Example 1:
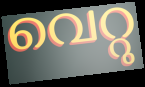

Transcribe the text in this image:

വെറ്റു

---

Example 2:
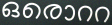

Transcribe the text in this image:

ഒരൊററ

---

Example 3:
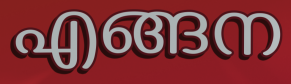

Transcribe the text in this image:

എങ്ങന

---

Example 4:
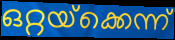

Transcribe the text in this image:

ഒറ്റയ്‌ക്കെന്ന്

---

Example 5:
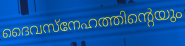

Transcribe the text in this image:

ദൈവസ്നേഹത്തിന്റെയും